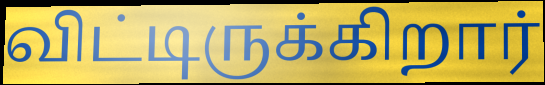
விட்டிருக்கிறார்